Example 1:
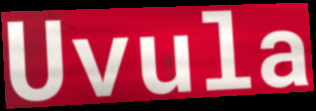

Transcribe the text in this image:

Uvula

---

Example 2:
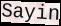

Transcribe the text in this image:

Sayin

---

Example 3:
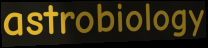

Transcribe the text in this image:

astrobiology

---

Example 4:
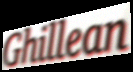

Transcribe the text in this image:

Ghillean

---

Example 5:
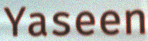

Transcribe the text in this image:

Yaseen